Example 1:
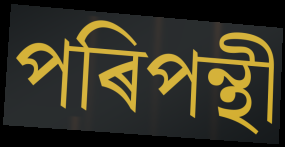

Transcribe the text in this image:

পৰিপন্থী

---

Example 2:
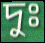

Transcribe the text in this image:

দুঃ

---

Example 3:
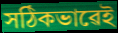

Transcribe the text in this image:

সঠিকভাৱেই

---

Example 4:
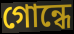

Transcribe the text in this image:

গোন্ধে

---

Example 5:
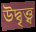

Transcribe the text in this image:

উদ্বৃত্ত্ব